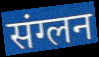
संग्लन